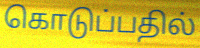
கொடுப்பதில்